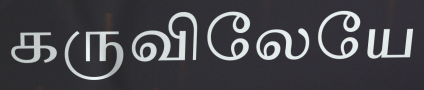
கருவிலேயே